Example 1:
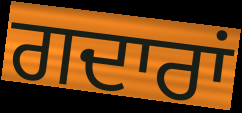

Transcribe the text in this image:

ਗਦਾਰਾਂ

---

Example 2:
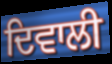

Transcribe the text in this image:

ਦਿਵਾਲੀ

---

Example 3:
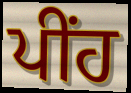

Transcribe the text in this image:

ਪੀਂਹ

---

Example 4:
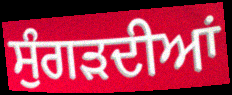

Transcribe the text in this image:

ਸੁੰਗੜਦੀਆਂ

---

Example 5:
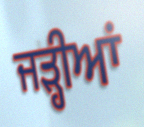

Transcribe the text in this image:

ਜੜ੍ਹੀਆਂ